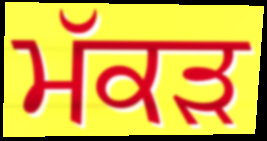
ਮੱਕੜ